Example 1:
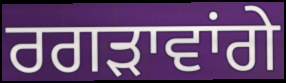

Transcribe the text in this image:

ਰਗੜਾਵਾਂਗੇ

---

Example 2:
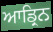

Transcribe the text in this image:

ਆਡ੍ਰਿਨ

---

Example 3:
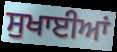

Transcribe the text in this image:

ਸੁਖਾਈਆਂ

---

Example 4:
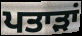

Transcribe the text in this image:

ਪਤਾੜਾਂ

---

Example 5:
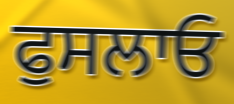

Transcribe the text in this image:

ਫੁਸਲਾਓ